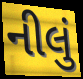
નીલું